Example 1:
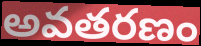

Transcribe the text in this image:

అవతరణం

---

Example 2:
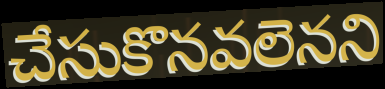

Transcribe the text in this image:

చేసుకొనవలెనని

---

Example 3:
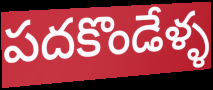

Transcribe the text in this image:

పదకొండేళ్ళ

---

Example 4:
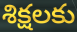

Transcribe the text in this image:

శిక్షలకు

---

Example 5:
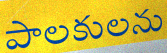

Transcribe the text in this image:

పాలకులను